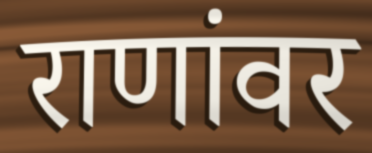
राणांवर